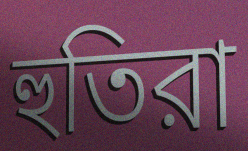
হুতিরা